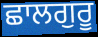
ਛਾਲਗੁਰੂ